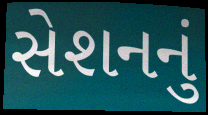
સેશનનું